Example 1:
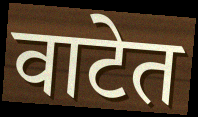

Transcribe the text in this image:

वाटेत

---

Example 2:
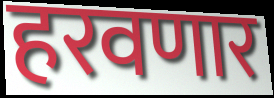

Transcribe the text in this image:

हरवणार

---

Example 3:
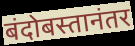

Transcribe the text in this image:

बंदोबस्तानंतर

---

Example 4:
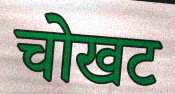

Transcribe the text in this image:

चोखट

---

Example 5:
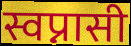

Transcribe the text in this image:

स्वप्नासी